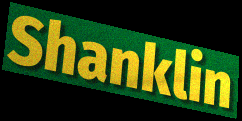
Shanklin